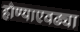
होण्याएवढ्या